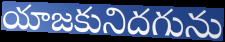
యాజకునిదగును